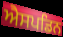
ਐਸਪਡਿਨ